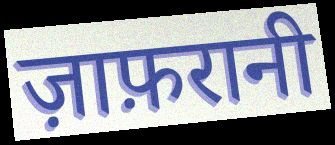
ज़ाफ़रानी